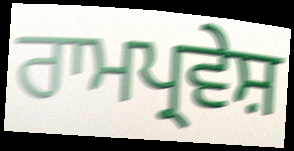
ਰਾਮਪ੍ਰਵੇਸ਼